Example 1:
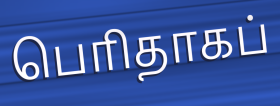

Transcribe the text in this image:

பெரிதாகப்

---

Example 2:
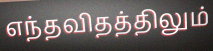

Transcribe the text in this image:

எந்தவிதத்திலும்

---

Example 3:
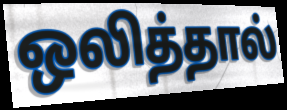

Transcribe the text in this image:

ஒலித்தால்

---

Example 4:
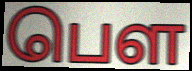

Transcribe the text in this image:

பெள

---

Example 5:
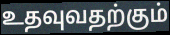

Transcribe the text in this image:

உதவுவதற்கும்